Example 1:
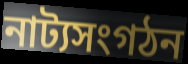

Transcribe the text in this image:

নাট্যসংগঠন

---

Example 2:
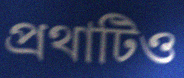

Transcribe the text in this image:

প্রথাটিও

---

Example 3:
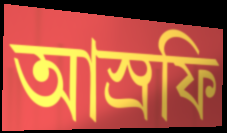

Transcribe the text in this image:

আস্রফি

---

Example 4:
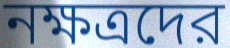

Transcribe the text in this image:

নক্ষত্রদের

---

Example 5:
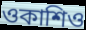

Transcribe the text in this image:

ওকাশিও